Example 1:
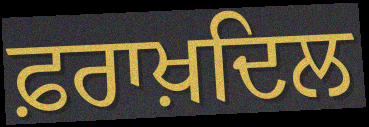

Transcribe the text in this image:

ਫ਼ਰਾਖ਼ਦਿਲ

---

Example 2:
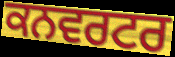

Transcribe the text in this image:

ਕਨਵਰਟਰ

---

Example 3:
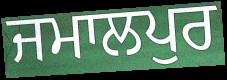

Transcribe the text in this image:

ਜਮਾਲਪੁਰ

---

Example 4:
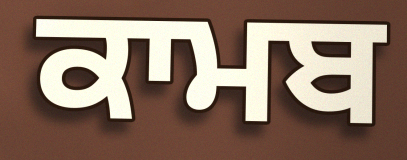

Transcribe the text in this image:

ਕਾਮਬ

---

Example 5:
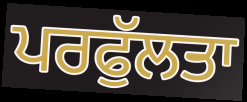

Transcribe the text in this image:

ਪਰਫੁੱਲਤਾ